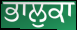
ਭਾਲੁਕਾ